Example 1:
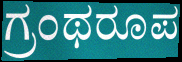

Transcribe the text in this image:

ಗ್ರಂಥರೂಪ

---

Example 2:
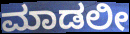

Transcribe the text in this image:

ಮಾಡಲೀ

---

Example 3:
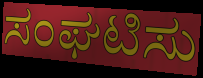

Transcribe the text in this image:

ಸಂಘಟಿಸು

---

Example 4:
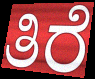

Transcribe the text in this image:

ತಿರೆ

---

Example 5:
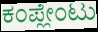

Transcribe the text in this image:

ಕಂಪ್ಲೇಂಟು